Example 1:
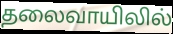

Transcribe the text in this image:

தலைவாயிலில்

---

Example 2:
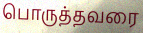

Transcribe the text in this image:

பொருத்தவரை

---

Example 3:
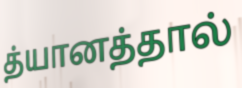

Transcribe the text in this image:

த்யானத்தால்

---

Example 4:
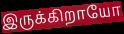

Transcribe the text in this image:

இருக்கிறாயோ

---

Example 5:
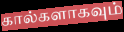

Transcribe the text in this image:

கால்களாகவும்